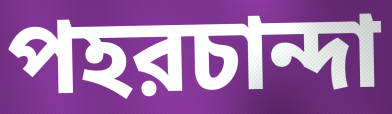
পহরচান্দা